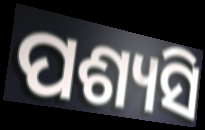
ପଶ୍ୟସି